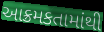
આક્રમકતામાંથી